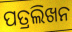
ପତ୍ରଲିଖନ